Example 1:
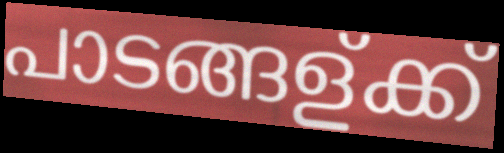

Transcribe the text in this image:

പാടങ്ങള്ക്ക്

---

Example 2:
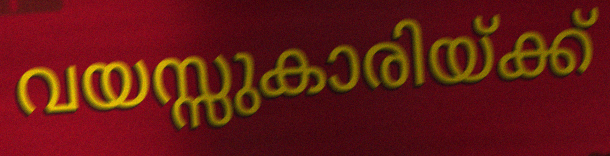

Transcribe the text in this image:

വയസ്സുകാരിയ്ക്ക്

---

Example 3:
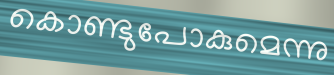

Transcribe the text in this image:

കൊണ്ടുപോകുമെന്നു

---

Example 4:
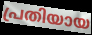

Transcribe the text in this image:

പ്രതിയായ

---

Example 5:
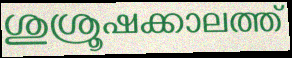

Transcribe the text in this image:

ശുശ്രൂഷക്കാലത്ത്